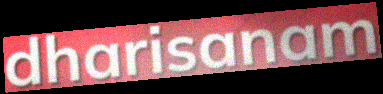
dharisanam